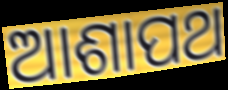
ଆଶାପଥ